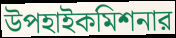
উপহাইকমিশনার